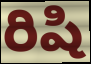
రిషి